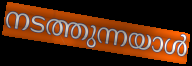
നടത്തുന്നയാൾ